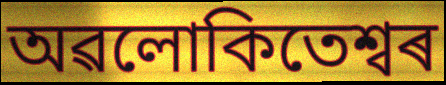
অৱলোকিতেশ্বৰ